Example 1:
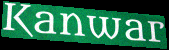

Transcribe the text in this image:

Kanwar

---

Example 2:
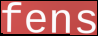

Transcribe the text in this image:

fens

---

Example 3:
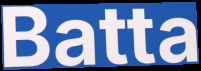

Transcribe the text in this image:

Batta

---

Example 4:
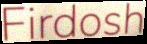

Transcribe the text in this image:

Firdosh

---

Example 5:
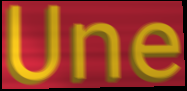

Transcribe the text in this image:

Une